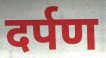
दर्पण